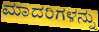
ಮಾದರಿಗಳನ್ನು